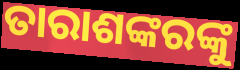
ତାରାଶଙ୍କରଙ୍କୁ